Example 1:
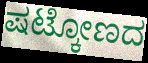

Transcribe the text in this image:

ಷಟ್ಕೋಣದ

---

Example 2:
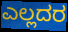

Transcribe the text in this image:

ಎಲ್ಲದರ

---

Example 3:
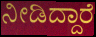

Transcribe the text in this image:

ನೀಡಿದ್ದಾರೆ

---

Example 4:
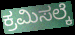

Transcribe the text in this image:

ಕ್ರಮಿಸಲ್ಕೆ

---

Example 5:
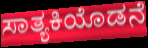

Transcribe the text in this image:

ಸಾತ್ಯಕಿಯೊಡನೆ